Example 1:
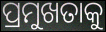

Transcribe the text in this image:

ପ୍ରମୁଖତାକୁ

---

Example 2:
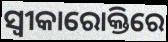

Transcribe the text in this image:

ସ୍ୱୀକାରୋକ୍ତିରେ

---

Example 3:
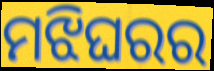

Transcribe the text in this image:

ମଝିଘରର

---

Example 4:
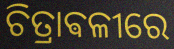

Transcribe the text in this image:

ଚିତ୍ରାଵଳୀରେ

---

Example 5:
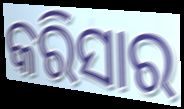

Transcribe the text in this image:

କରିସାର